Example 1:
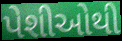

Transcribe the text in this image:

પેશીઓથી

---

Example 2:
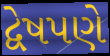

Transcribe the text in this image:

દ્વેષપણે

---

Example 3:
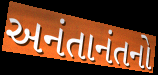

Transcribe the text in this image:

અનંતાનંતનો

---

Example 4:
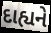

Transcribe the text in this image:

દાહ્યને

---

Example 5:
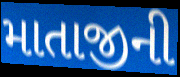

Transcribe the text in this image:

માતાજીની